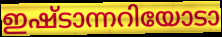
ഇഷ്ടാന്നറിയോടാ